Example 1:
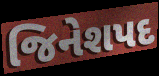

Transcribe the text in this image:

જિનેશપદ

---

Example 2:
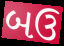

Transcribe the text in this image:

બઉ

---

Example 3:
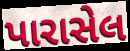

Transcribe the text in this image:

પારાસેલ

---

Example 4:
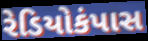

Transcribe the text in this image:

રેડિયોકંપાસ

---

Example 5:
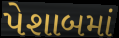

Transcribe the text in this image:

પેશાબમાં